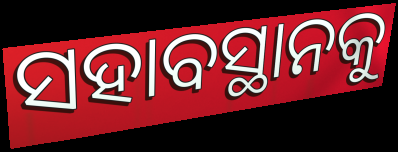
ସହାବସ୍ଥାନକୁ